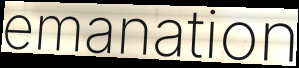
emanation